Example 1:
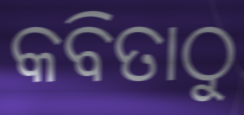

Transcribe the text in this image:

କବିତାଠୁ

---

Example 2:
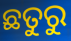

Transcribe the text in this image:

ଛତୁରୁ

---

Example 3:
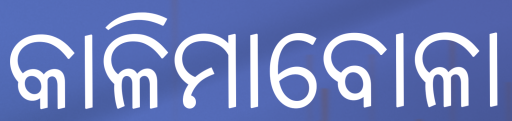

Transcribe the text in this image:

କାଳିମାବୋଳା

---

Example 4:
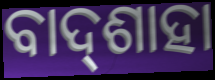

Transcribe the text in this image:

ବାଦ୍‌ଶାହା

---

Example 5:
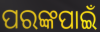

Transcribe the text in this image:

ପରଙ୍କପାଇଁ